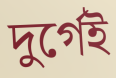
দুর্গেই